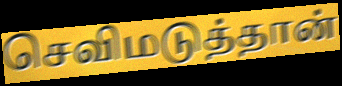
செவிமடுத்தான்